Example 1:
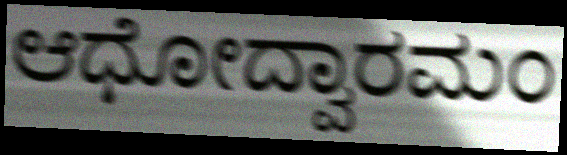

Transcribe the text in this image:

ಆಧೋದ್ವಾರಮಂ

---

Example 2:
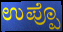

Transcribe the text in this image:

ಉಪ್ಪೊ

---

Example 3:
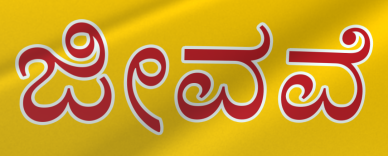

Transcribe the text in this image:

ಜೀವವೆ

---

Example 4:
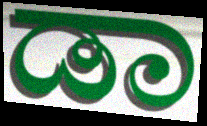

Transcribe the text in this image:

ಡಾ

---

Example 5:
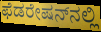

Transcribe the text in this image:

ಫೆಡರೇಷನ್‌ನಲ್ಲಿ